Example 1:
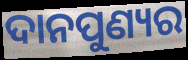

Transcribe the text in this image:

ଦାନପୁଣ୍ୟର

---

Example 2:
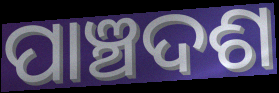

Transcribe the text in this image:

ପାଞ୍ଚଦଶ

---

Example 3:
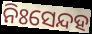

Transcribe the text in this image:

ନିଃସେନ୍ଦହ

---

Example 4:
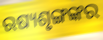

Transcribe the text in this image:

ଋଷ୍ୟଶୃଙ୍ଗଙ୍କର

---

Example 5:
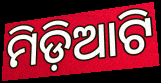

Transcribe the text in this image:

ମିଡ଼ିଆଟି